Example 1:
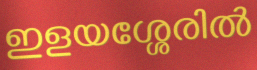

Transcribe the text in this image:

ഇളയശ്ശേരിൽ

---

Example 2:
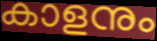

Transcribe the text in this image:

കാളനും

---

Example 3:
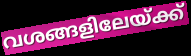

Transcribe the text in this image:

വശങ്ങളിലേയ്ക്ക്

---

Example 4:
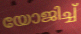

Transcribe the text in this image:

യോജിച്ച്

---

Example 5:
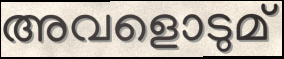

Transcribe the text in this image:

അവളൊടുമ്